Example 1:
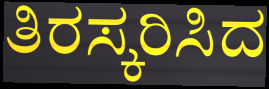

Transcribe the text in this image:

ತಿರಸ್ಕರಿಸಿದ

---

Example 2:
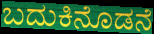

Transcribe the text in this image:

ಬದುಕಿನೊಡನೆ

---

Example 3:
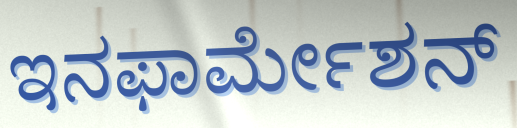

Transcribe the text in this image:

ಇನಫಾರ್ಮೇಶನ್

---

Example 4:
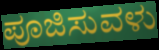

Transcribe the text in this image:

ಪೂಜಿಸುವಳು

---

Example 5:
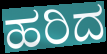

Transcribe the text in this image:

ಹರಿದ